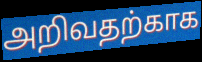
அறிவதற்காக